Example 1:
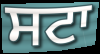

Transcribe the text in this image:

ਸਟਾ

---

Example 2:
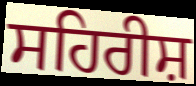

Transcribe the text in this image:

ਸਹਿਰੀਸ਼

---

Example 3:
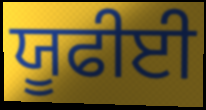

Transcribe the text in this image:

ਯੂਫੀਈ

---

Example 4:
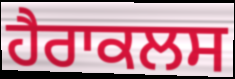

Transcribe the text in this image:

ਹੈਰਾਕਲਸ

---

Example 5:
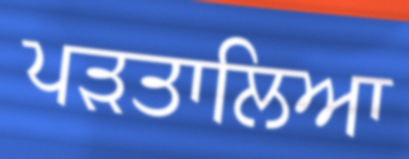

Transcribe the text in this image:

ਪੜਤਾਲਿਆ